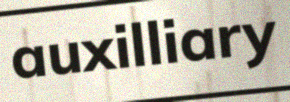
auxilliary